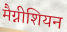
मैग्नीशियन